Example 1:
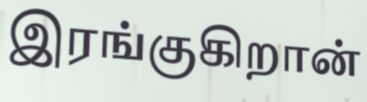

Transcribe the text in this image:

இரங்குகிறான்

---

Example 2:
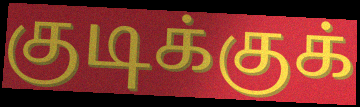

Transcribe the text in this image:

குடிக்குக்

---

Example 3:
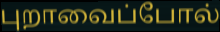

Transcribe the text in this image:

புறாவைப்போல்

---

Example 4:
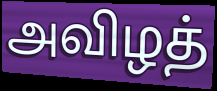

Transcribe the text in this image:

அவிழத்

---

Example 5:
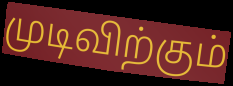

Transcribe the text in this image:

முடிவிற்கும்